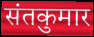
संतकुमार